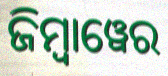
ଜିମ୍ୱାୱେର